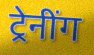
ट्रेनींग